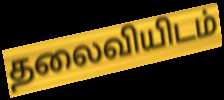
தலைவியிடம்